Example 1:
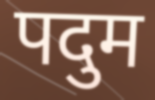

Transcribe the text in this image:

पदुम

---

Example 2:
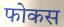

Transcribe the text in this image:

फोकस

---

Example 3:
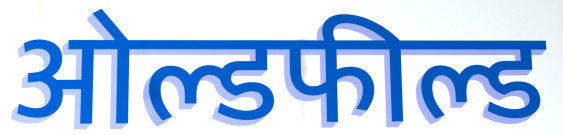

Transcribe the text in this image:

ओल्डफील्ड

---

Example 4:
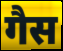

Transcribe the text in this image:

गैस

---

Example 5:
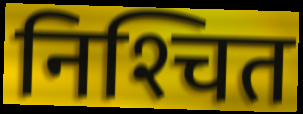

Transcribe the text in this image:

निश्चित